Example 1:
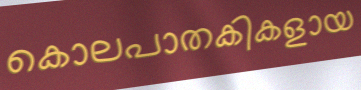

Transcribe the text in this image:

കൊലപാതകികളായ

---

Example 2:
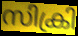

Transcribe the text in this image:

സിക്രി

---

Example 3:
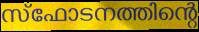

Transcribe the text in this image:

സ്ഫോടനത്തിന്റെ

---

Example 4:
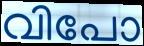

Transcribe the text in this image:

വിപോ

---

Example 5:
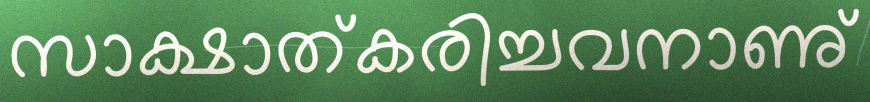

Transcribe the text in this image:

സാക്ഷാത്കരിച്ചവനാണു്